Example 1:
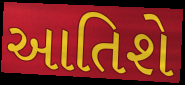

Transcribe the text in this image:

આતિશે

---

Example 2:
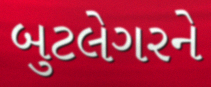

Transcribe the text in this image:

બુટલેગરને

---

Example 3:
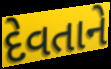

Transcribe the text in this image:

દેવતાને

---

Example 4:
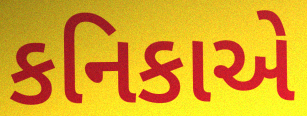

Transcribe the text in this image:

કનિકાએ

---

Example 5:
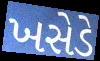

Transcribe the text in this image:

ખસેડે